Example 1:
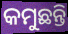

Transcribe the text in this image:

କମୁଛନ୍ତି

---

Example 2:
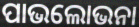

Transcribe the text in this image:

ପାଭଲୋଭନା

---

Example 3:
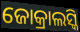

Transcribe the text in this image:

ଜୋକ୍ରାଲସ୍କି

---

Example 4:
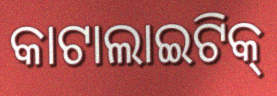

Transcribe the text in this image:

କାଟାଲାଇଟିକ୍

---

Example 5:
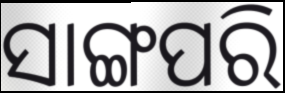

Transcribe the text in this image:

ସାଙ୍ଗପରି